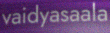
vaidyasaala